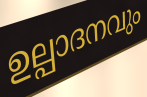
ഉല്പാദനവും